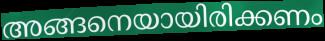
അങ്ങനെയായിരിക്കണം